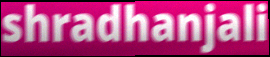
shradhanjali